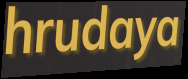
hrudaya